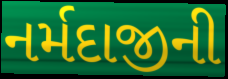
નર્મદાજીની